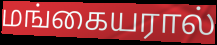
மங்கையரால்